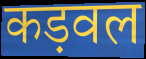
कड़वल